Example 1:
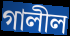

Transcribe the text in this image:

গালীল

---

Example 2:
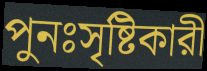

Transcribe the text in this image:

পুনঃসৃষ্টিকারী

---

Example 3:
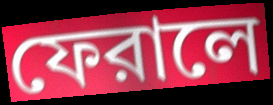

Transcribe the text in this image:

ফেরালে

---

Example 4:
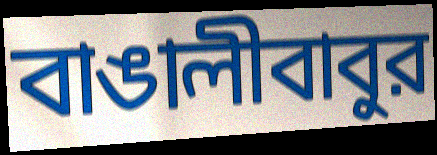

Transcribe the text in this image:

বাঙালীবাবুর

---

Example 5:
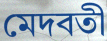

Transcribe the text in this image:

মেদবতী